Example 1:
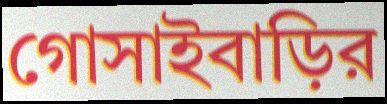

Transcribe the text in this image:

গোসাইবাড়ির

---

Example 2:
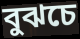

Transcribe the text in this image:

বুঝচে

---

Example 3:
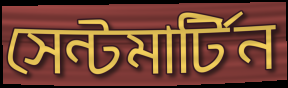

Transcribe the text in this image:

সেন্টমার্টিন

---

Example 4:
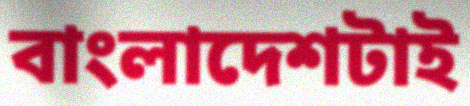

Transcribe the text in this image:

বাংলাদেশটাই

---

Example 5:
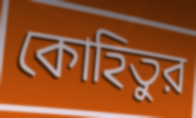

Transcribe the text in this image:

কোহিতুর